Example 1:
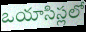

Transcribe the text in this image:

ఒయాసిస్లలో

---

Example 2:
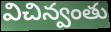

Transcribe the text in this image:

విచిన్వంతు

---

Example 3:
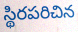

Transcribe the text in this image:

స్థిరపరిచిన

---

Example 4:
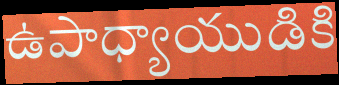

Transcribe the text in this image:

ఉపాధ్యాయుడికి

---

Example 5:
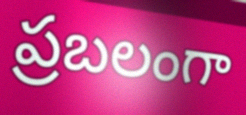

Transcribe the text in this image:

ప్రబలంగా